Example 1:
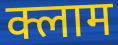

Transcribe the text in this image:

क्लाम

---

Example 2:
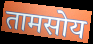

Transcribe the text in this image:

तामसोय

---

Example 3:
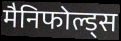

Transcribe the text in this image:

मैनिफोल्ड्स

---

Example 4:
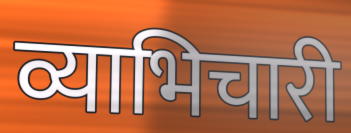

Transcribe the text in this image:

व्याभिचारी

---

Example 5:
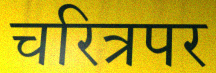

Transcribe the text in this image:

चरित्रपर